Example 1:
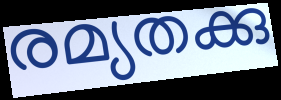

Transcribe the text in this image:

രമ്യതക്കു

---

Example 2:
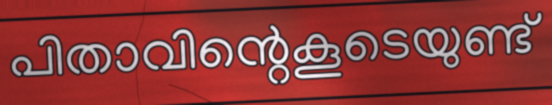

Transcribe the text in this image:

പിതാവിന്റെകൂടെയുണ്ട്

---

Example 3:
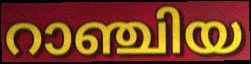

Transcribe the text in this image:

റാഞ്ചിയ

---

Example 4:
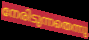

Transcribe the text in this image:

നേരിടുന്നതെന്നു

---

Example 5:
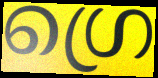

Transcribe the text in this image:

ഗ്രെ